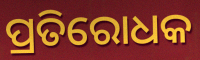
ପ୍ରତିରୋଧକ